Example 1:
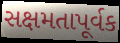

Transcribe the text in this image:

સક્ષમતાપૂર્વક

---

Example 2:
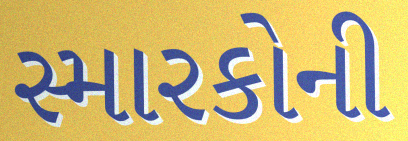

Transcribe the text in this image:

સ્મારકોની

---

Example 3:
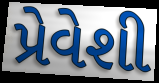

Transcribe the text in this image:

પ્રેવેશી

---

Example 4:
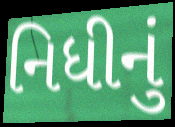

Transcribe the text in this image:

નિધીનું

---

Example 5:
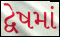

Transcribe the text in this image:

દ્વેષમાં